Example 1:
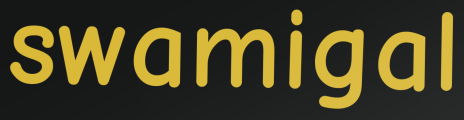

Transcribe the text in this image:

swamigal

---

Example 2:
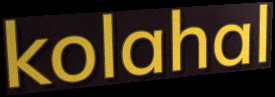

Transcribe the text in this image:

kolahal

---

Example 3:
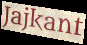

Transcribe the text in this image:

Jajkant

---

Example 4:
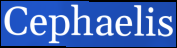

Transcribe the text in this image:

Cephaelis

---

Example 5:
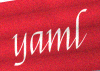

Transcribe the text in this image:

yaml